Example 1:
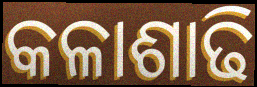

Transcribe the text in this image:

କଳାଶାଢି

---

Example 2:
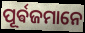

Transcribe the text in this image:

ପୂର୍ଵଜମାନେ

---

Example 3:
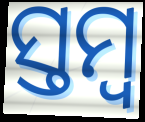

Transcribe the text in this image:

ସ୍ତମ୍ବ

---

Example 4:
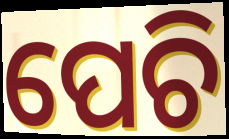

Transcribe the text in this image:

ପେଚି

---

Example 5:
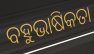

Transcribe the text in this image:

ବହୁଭାଷିକତା